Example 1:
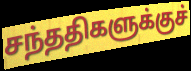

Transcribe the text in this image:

சந்ததிகளுக்குச்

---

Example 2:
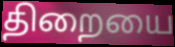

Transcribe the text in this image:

திறையை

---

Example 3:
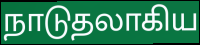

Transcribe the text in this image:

நாடுதலாகிய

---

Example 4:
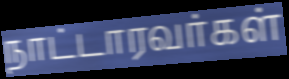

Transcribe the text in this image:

நாட்டாரவர்கள்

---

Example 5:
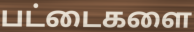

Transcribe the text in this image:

பட்டைகளை